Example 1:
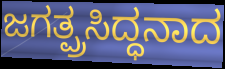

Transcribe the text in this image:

ಜಗತ್ಪ್ರಸಿದ್ಧನಾದ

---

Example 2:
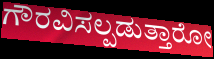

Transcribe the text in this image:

ಗೌರವಿಸಲ್ಪಡುತ್ತಾರೋ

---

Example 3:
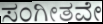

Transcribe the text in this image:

ಸಂಗೀತವೇ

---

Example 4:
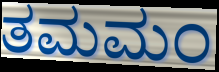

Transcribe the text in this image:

ತಮಮಂ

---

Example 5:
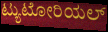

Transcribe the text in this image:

ಟ್ಯುಟೋರಿಯಲ್